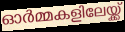
ഓർമ്മകളിലേയ്ക്ക്